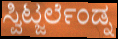
ಸ್ವಿಟ್ಜರ್ಲೆಂಡ್ನ